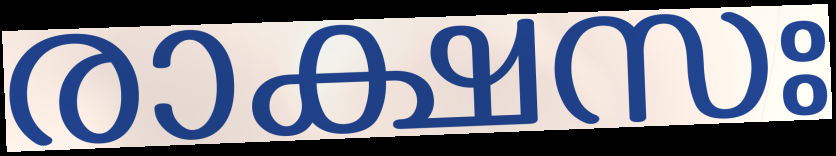
രാക്ഷസഃ